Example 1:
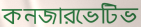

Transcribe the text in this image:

কনজারভেটিভ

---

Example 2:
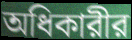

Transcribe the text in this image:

অধিকারীর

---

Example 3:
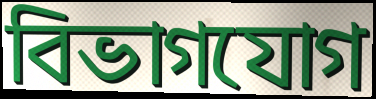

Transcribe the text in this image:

বিভাগযোগ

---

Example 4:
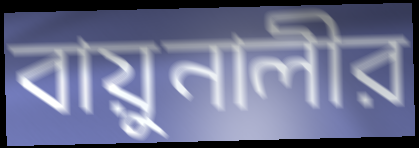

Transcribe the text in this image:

বায়ুনালীর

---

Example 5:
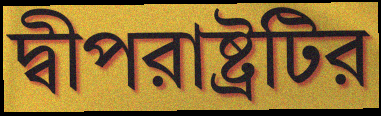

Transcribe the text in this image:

দ্বীপরাষ্ট্রটির